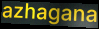
azhagana